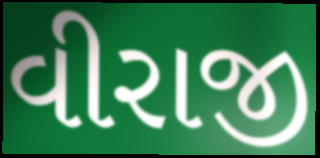
વીરાજી